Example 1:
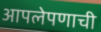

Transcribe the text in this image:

आपलेपणाची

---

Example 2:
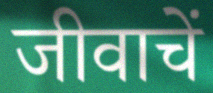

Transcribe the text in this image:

जीवाचें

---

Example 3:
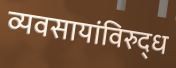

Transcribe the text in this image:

व्यवसायांविरुद्ध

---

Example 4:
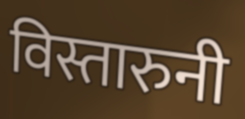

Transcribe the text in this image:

विस्तारुनी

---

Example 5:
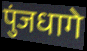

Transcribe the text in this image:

पुंजधागे